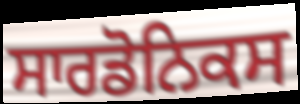
ਸਾਰਡੋਨਿਕਸ